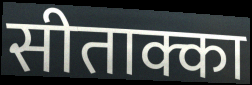
सीताक्का